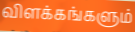
விளக்கங்களும்